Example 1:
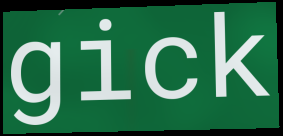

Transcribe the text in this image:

gick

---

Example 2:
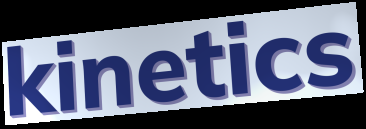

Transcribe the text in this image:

kinetics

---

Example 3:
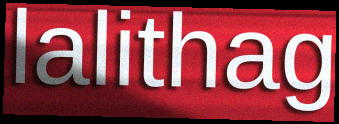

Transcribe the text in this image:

lalithag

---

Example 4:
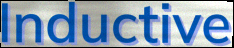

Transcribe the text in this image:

Inductive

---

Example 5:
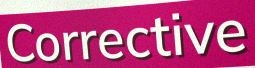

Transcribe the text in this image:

Corrective